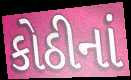
કોઠીનાં